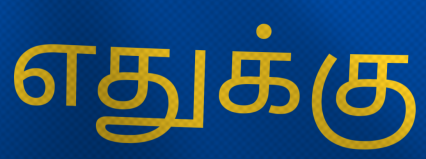
எதுக்கு